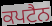
ਕਪਟੈਨ